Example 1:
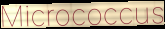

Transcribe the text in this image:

Micrococcus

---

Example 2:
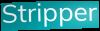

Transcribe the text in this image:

Stripper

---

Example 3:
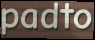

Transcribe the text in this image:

padto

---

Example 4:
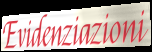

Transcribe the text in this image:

Evidenziazioni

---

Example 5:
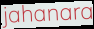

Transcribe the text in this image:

jahanara